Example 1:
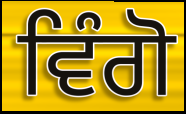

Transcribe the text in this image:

ਵਿੰਗੋ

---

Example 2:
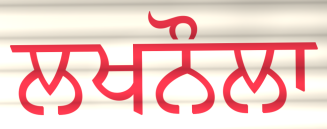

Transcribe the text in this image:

ਲਖਨੌਲਾ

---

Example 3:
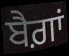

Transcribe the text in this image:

ਬੈਗ਼ਾਂ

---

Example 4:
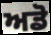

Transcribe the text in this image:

ਅਡੋ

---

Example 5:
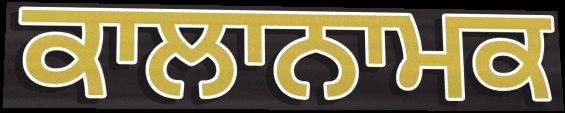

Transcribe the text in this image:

ਕਾਲਾਨਾਮਕ